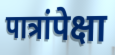
पात्रांपेक्षा